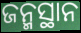
ଜନ୍ମସ୍ଥାନ